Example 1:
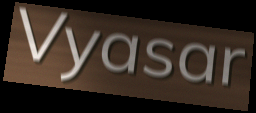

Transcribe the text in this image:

Vyasar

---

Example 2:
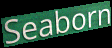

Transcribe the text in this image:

Seaborn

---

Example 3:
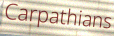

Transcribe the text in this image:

Carpathians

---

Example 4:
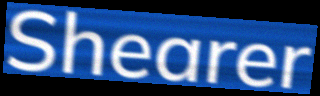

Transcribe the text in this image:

Shearer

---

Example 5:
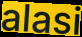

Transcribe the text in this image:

alasi